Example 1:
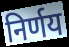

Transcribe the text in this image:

निर्णय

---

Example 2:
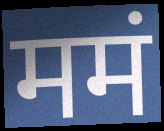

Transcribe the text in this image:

ममं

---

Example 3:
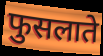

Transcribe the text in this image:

फुसलाते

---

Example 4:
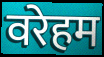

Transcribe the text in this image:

वरेहम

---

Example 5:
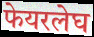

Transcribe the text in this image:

फेयरलेघ